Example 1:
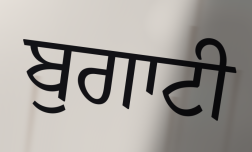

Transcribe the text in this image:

ਬੁਗਾਟੀ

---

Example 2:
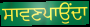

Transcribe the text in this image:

ਸਾਵਣਪਾਉਂਦਾ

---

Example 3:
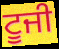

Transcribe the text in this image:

ਟੂਜੀ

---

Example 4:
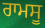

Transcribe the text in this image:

ਰਾਮਸੂ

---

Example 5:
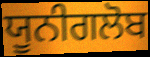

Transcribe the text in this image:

ਯੂਨੀਗਲੋਬ